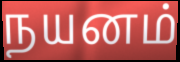
நயனம்